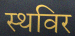
स्थविर